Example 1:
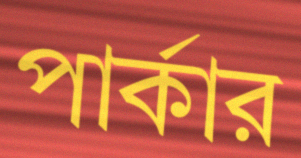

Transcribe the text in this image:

পার্কার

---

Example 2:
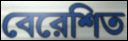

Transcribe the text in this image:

বেরেশিত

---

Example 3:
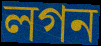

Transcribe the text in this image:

লগন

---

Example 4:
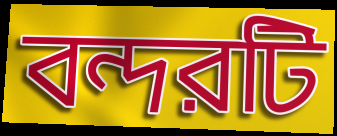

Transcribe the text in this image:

বন্দরটি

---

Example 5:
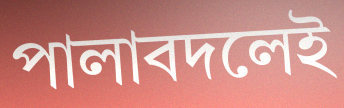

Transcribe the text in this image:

পালাবদলেই